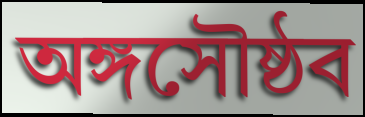
অঙ্গসৌষ্ঠব